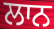
ਲਾਨ